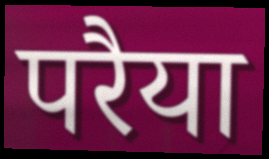
परैया